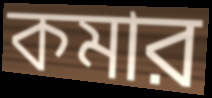
কমার